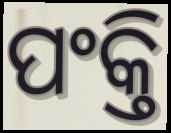
ପଂକ୍ତି